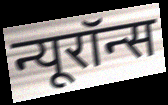
न्यूरॉन्स